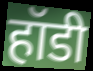
हॉडी